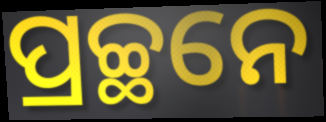
ପ୍ରଚ୍ଛନେ